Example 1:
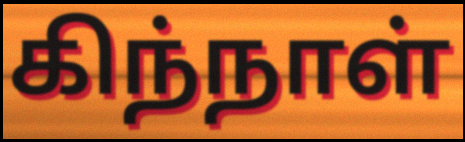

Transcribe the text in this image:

கிந்நாள்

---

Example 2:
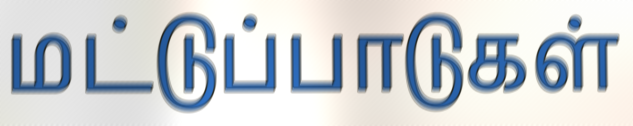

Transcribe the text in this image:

மட்டுப்பாடுகள்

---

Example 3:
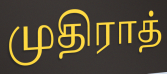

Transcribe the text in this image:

முதிராத்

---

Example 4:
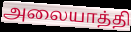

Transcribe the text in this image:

அலையாத்தி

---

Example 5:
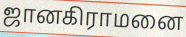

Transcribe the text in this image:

ஜானகிராமனை